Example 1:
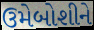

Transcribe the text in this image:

ઉમેબોશીને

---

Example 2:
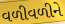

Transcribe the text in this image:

વળીવળીને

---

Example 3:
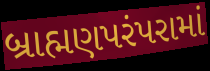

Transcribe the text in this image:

બ્રાહ્મણપરંપરામાં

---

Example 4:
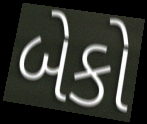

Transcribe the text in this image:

બેકો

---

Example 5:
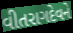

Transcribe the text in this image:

વીતરાગદેવને